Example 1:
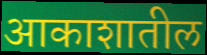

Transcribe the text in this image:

आकाशातील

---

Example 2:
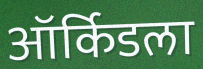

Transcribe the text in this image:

ऑर्किडला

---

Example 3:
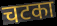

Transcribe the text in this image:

चटका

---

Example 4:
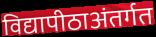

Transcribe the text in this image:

विद्यापीठाअंतर्गत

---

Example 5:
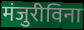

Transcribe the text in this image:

मंजुरीविना